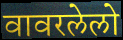
वावरलेलो